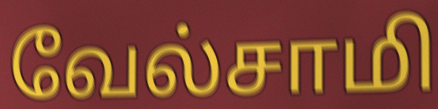
வேல்சாமி